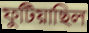
ফুটিয়াছিল